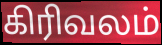
கிரிவலம்